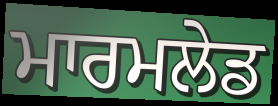
ਮਾਰਮਲੇਡ